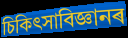
চিকিৎসাবিজ্ঞানৰ